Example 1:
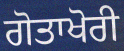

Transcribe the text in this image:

ਗੋਤਾਖੋਰੀ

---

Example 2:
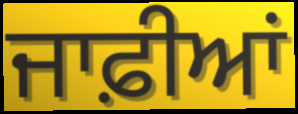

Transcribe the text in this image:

ਜਾਫ਼ੀਆਂ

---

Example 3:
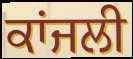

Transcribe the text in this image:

ਕਾਂਜਲੀ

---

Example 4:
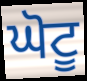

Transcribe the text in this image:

ਘੋਟੂ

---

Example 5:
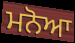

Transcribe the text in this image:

ਮਨੋਆ